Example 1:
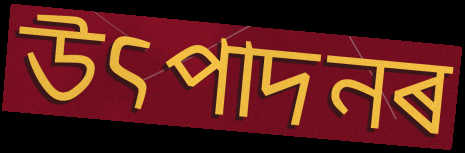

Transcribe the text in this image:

উৎপাদনৰ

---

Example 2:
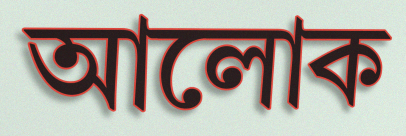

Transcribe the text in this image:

আলোক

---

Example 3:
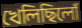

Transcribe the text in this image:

খেলিছিলোঁ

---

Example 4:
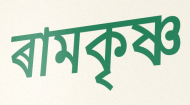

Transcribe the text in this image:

ৰামকৃষ্ণ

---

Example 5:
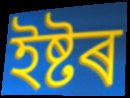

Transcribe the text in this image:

ইষ্টৰ